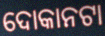
ଦୋକାନଟା